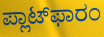
ಪ್ಲಾಟ್‌ಫಾರಂ